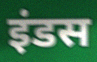
इंडस